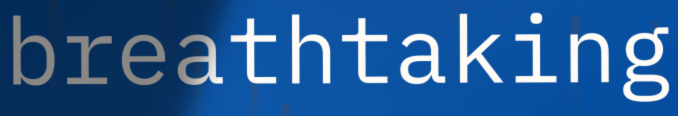
breathtaking